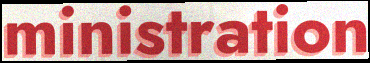
ministration